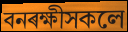
বনৰক্ষীসকলে